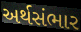
અર્થસંભાર